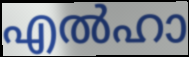
എൽഹാ